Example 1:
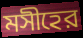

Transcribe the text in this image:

মসীহের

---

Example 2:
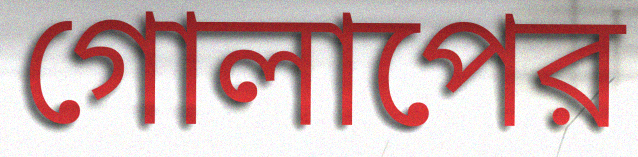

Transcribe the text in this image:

গোলাপের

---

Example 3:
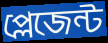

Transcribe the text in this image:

প্লেজেন্ট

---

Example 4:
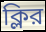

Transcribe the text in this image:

ক্লির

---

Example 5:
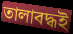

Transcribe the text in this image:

তালাবদ্ধই